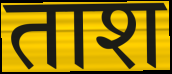
ताश